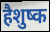
हैशुष्क